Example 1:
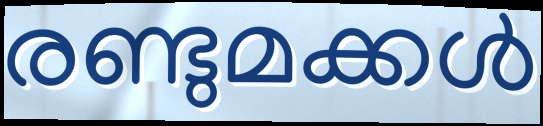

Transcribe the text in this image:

രണ്ടുമക്കൾ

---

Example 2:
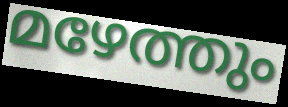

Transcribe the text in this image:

മഴേത്തും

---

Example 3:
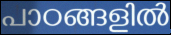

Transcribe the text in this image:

പാഠങ്ങളിൽ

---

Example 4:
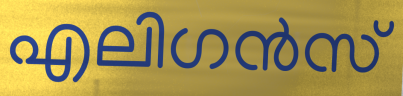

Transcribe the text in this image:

എലിഗൻസ്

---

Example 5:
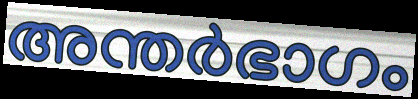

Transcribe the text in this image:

അന്തർഭാഗം